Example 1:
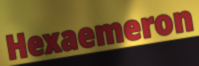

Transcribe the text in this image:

Hexaemeron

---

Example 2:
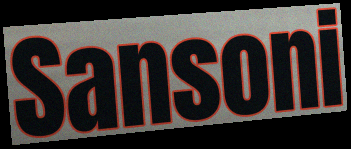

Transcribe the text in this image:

Sansoni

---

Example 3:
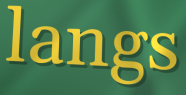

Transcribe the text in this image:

langs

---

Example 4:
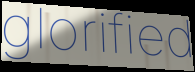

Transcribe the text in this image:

glorified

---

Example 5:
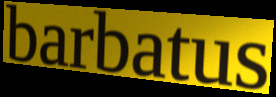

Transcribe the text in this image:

barbatus